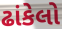
ઢાંકેલો